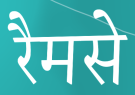
रैमसे